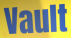
Vault